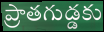
ప్రాతగుడ్డకు